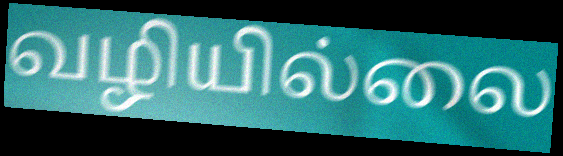
வழியில்லை